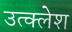
उत्क्लेश